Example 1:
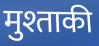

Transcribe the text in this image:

मुश्ताकी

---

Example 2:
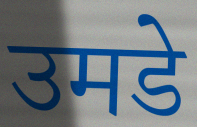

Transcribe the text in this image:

उमडे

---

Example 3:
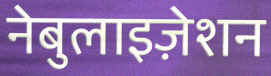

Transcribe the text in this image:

नेबुलाइज़ेशन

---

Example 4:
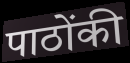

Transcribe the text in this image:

पाठोंकी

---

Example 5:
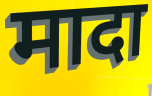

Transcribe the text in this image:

मादा